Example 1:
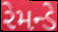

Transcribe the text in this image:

રેમન્ડે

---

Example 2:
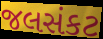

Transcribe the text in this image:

જલસંકટ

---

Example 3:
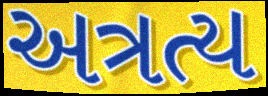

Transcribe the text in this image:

અત્રત્ય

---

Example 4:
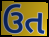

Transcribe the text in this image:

ઉત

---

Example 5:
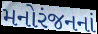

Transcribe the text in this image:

મનોરંજનનાં